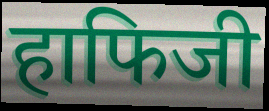
हाफिजी